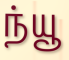
ந்யூ